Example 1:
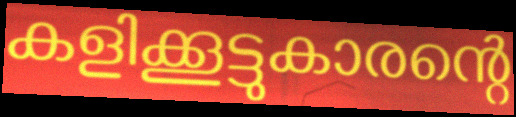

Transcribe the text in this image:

കളിക്കൂട്ടുകാരന്റെ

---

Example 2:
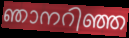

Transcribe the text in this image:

ഞാനറിഞ്ഞ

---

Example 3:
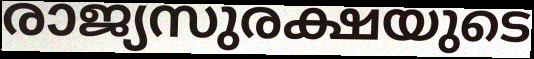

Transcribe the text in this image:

രാജ്യസുരക്ഷയുടെ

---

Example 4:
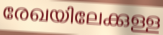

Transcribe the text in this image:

രേഖയിലേക്കുള്ള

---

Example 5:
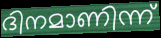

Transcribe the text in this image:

ദിനമാണിന്ന്